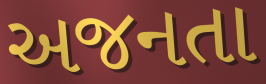
અજનતા